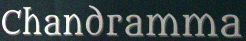
Chandramma